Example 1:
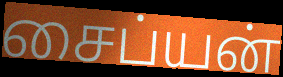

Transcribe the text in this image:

சைப்யன்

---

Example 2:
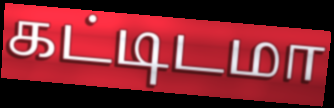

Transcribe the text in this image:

கட்டிடமா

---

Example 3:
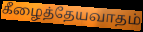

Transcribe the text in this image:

கீழைத்தேயவாதம்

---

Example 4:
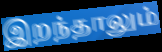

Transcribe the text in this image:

இறந்தாலும்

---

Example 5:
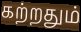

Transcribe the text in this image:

கற்றதும்